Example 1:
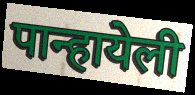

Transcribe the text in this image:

पान्हायेली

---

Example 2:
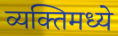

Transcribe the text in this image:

व्यक्तिमध्ये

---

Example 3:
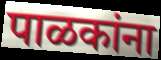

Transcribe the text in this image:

पाळकांना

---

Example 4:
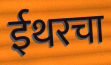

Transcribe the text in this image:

ईथरचा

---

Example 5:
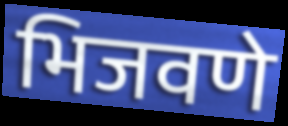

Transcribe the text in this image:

भिजवणे